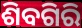
ଶିବଗିରି